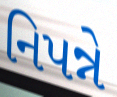
નિપન્ને